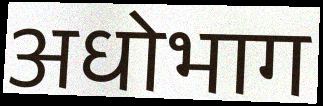
अधोभाग